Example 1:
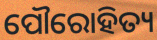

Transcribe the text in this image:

ପୌରୋହିତ୍ୟ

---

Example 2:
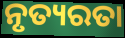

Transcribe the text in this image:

ନୃତ୍ୟରତା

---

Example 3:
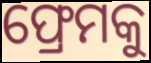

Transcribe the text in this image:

ଫ୍ରେମକୁ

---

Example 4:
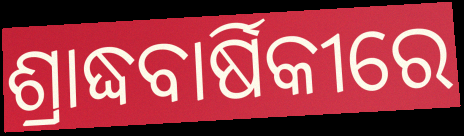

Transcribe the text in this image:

ଶ୍ରାଦ୍ଧବାର୍ଷିକୀରେ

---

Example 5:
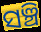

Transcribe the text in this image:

ସଞ୍ଚି